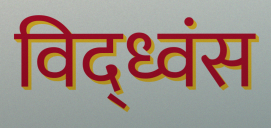
विद्ध्वंस